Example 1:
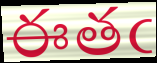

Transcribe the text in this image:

ఈతఁ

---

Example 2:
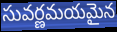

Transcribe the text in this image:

సువర్ణమయమైన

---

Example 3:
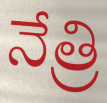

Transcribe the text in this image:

నేత్రి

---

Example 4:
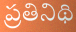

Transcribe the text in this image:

ప్రతినిథి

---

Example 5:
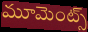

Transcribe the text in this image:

మూమెంట్స్